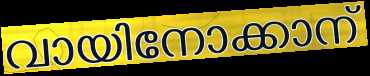
വായിനോക്കാന്